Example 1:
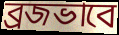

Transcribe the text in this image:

ব্রজভাবে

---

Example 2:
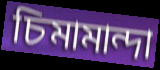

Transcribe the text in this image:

চিমামান্দা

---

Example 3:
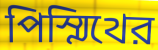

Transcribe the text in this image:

পিস্মিথের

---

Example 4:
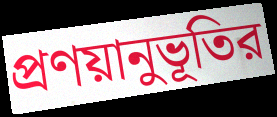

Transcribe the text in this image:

প্রণয়ানুভূতির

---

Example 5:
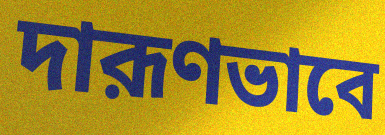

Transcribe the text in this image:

দারূণভাবে